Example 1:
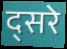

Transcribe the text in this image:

द्सरे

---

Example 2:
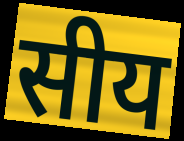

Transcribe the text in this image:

सीय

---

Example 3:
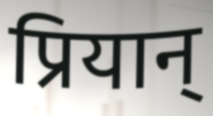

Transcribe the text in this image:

प्रियान्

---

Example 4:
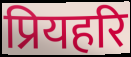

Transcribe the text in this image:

प्रियहरि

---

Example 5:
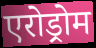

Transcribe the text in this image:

एरोड्रोम